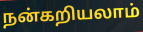
நன்கறியலாம்